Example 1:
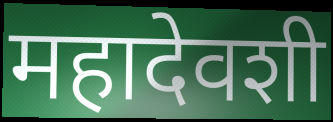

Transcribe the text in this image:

महादेवशी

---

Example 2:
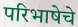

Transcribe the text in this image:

परिभाषेचे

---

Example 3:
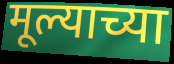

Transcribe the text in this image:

मूल्याच्या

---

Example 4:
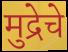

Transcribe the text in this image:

मुद्रेचे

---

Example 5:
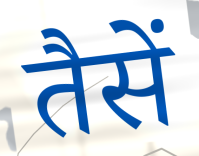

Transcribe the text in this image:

तैसें